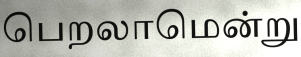
பெறலாமென்று